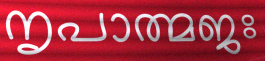
നൃപാത്മജഃ